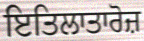
ਇਤਿਲਾਤਾਰੋਜ਼